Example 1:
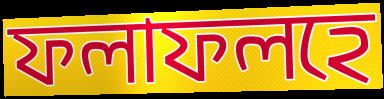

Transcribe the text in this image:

ফলাফলহে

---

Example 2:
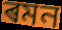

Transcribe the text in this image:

ৰমন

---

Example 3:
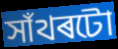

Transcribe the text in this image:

সাঁথৰটো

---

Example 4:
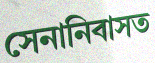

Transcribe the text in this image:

সেনানিবাসত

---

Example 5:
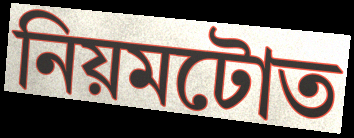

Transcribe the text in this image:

নিয়মটোত